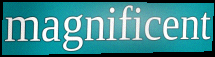
magnificent